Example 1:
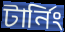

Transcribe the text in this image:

টাৰ্নিং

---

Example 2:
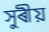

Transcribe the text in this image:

সুৰীয়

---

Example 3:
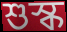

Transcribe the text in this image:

শুস্ক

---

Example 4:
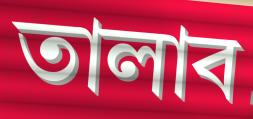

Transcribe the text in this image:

তালাব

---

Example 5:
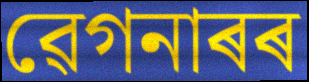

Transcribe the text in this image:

ৱেগনাৰৰ